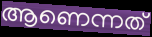
ആണെന്നത്